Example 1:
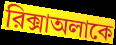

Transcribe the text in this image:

রিক্সাঅলাকে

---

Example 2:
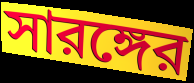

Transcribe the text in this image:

সারঙ্গের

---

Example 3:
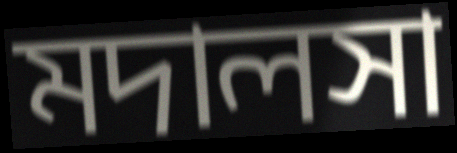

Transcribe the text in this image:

মদালসা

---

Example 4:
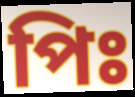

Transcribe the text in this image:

পিঃ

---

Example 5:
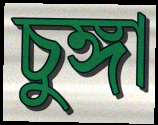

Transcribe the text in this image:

চুঙ্গা